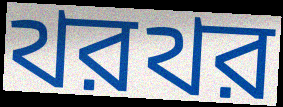
থরথর